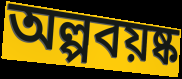
অল্পবয়ষ্ক